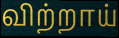
விற்றாய்